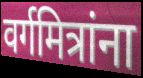
वर्गमित्रांना